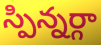
స్పిన్నర్గా